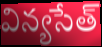
విన్యసేత్